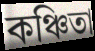
কঞ্চিতা